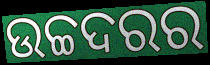
ଉଚ୍ଚଦରର